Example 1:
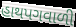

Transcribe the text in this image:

હાથપગવાળી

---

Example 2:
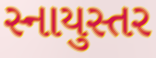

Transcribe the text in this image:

સ્નાયુસ્તર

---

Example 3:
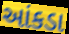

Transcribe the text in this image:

આંકડા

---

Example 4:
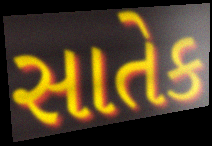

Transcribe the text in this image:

સાતેક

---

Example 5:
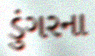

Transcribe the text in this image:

ડુંગરના